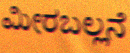
ಮೀರಬಲ್ಲನೆ